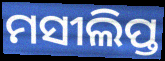
ମସୀଲିପ୍ତ